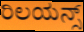
ರಿಲಯನ್ಸ್